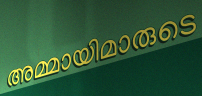
അമ്മായിമാരുടെ